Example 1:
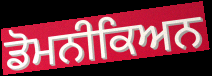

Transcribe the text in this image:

ਡੋਮਨੀਕਿਅਨ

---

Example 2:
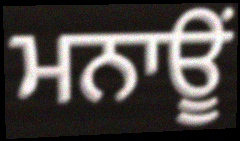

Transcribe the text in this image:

ਮਨਾਊਂ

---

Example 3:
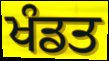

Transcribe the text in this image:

ਖੰਡਤ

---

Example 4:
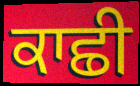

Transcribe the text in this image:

ਕਾਛੀ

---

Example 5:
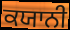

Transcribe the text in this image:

ਕਯਾਨੀ